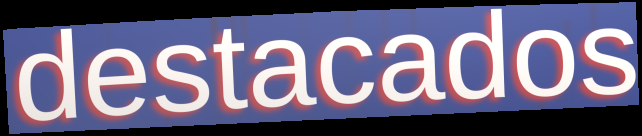
destacados